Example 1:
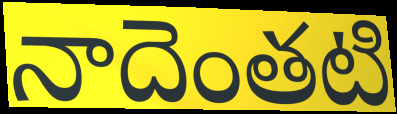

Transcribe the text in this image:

నాదెంతటి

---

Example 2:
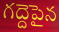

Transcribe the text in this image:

గద్దెపైన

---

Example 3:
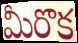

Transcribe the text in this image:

మీరొక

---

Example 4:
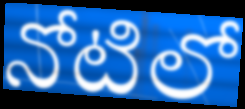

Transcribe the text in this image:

నోటిలో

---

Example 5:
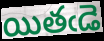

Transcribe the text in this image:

యితఁడె